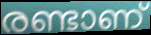
രണ്ടാണ്